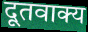
दूतवाक्य